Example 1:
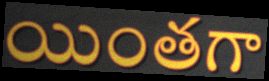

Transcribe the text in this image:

యింతగా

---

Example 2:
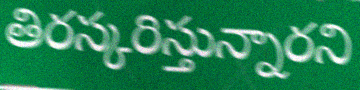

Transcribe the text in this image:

తిరస్కరిస్తున్నారని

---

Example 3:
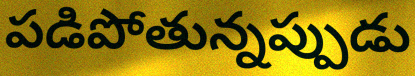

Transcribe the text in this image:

పడిపోతున్నప్పుడు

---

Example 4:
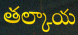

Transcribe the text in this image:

తల్కాయ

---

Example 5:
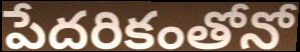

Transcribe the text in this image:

పేదరికంతోనో